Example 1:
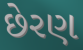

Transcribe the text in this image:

છેરણ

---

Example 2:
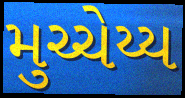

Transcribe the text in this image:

મુચ્ચેય્ય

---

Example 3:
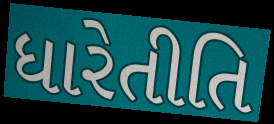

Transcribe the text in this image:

ધારેતીતિ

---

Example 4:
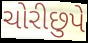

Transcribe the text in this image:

ચોરીછુપે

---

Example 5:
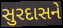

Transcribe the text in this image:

સુરદાસને